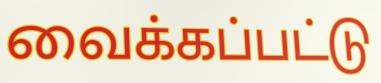
வைக்கப்பட்டு